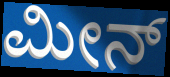
ಮೀನ್